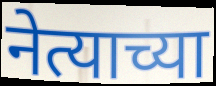
नेत्याच्या